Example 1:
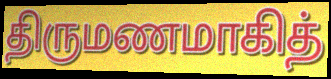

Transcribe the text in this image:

திருமணமாகித்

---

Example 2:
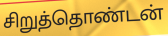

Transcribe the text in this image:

சிறுத்தொண்டன்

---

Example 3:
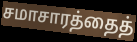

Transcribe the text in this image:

சமாசாரத்தைத்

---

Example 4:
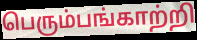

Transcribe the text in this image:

பெரும்பங்காற்றி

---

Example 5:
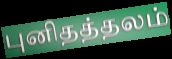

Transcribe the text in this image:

புனிதத்தலம்